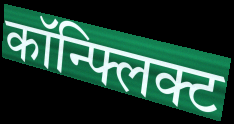
कॉन्फ्लिक्ट